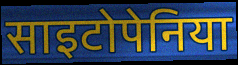
साइटोपेनिया